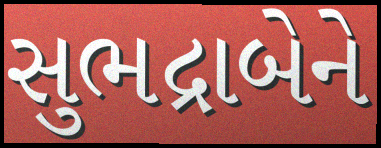
સુભદ્રાબેને